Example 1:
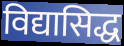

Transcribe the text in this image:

विद्यासिद्ध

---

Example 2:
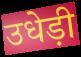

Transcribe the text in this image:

उधेड़ी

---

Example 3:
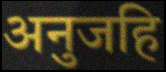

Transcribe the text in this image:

अनुजहि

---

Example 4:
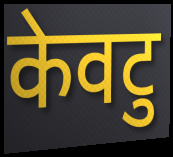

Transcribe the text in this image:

केवटु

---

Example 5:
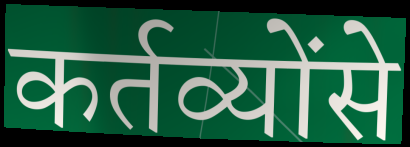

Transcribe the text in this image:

कर्तव्योंसे